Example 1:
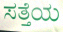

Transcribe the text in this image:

ಸತ್ತೆಯ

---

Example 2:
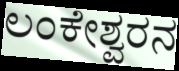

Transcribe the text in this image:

ಲಂಕೇಶ್ವರನ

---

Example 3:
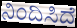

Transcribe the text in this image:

ನಿಂದಿಸಿದೆ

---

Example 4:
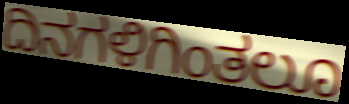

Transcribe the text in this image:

ದಿನಗಳಿಗಿಂತಲೂ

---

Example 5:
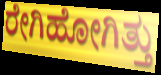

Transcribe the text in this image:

ರೇಗಿಹೋಗಿತ್ತು